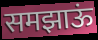
समझाऊं